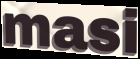
masi